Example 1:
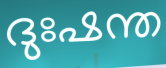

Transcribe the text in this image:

ദുഃഷന്ത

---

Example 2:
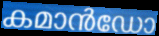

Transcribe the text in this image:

കമാൻഡോ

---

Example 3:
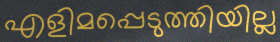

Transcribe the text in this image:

എളിമപ്പെടുത്തിയില്ല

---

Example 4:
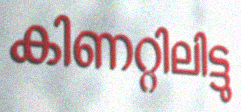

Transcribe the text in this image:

കിണറ്റിലിട്ടു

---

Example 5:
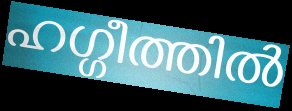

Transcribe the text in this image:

ഹഗ്ഗീത്തിൽ